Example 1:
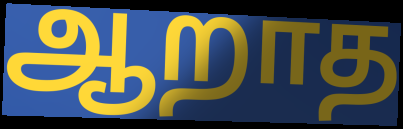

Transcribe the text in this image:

ஆறாத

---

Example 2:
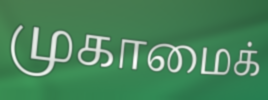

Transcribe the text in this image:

முகாமைக்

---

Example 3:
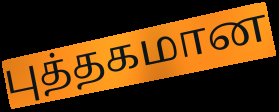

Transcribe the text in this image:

புத்தகமான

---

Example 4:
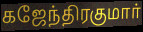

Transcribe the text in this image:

கஜேந்திரகுமார்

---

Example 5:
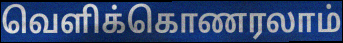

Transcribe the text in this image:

வெளிக்கொணரலாம்